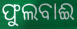
ଫୁଲବାଈ